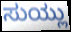
ಸುಯ್ಲು